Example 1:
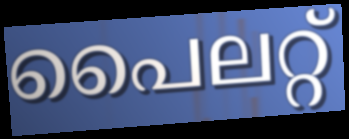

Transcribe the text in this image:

പൈലറ്റ്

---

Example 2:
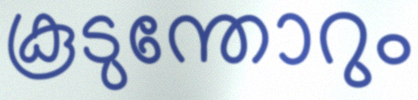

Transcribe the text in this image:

കൂടുന്തോറും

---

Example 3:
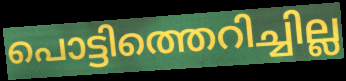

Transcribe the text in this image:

പൊട്ടിത്തെറിച്ചില്ല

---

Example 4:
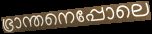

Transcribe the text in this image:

ഭ്രാന്തനെപ്പോലെ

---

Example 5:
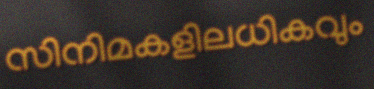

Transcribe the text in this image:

സിനിമകളിലധികവും